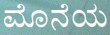
ಮೊನೆಯ